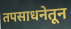
तपसाधनेतून